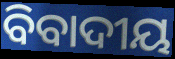
ବିବାଦୀୟ